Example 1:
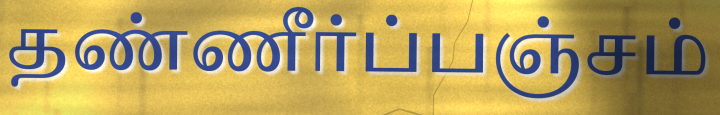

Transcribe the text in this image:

தண்ணீர்ப்பஞ்சம்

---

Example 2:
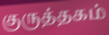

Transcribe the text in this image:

குருத்தகம்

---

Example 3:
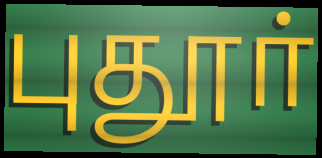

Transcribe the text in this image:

புதூர்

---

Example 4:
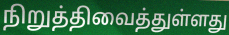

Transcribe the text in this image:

நிறுத்திவைத்துள்ளது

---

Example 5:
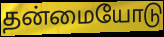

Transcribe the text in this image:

தன்மையோடு